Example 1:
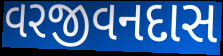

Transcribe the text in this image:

વરજીવનદાસ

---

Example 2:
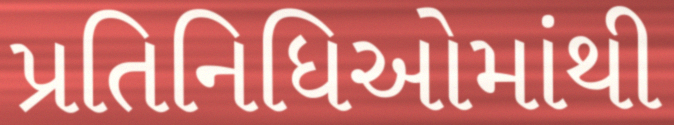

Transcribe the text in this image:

પ્રતિનિધિઓમાંથી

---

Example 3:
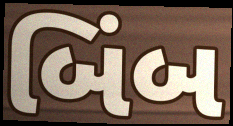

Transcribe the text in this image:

બિંબ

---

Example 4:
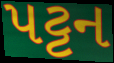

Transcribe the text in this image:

પટ્ટન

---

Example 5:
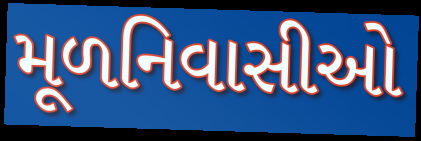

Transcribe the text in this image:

મૂળનિવાસીઓ